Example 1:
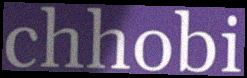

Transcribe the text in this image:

chhobi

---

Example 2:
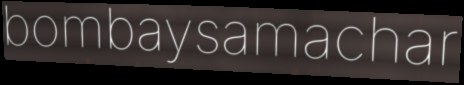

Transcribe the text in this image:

bombaysamachar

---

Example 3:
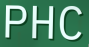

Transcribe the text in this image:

PHC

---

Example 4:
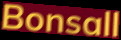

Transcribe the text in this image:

Bonsall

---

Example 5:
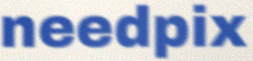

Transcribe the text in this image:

needpix